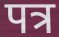
पत्र